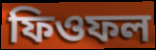
ফিওফল